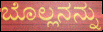
ಬೊಲ್ಲನನ್ನು